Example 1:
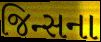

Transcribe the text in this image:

જિન્સના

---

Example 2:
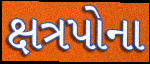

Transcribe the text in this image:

ક્ષત્રપોના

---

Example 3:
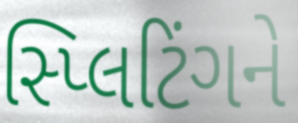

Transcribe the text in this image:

સ્પ્લિટિંગને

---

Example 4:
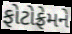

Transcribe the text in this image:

ફોટોફ્રેમને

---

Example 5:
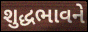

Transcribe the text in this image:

શુદ્ધભાવને